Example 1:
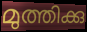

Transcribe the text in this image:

മുത്തിക്കു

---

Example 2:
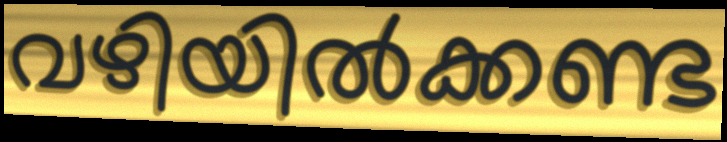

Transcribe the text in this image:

വഴിയിൽക്കണ്ട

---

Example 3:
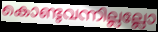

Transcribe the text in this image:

കൊണ്ടുവന്നില്ലല്ലോ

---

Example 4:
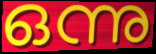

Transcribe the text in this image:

ഒന്നു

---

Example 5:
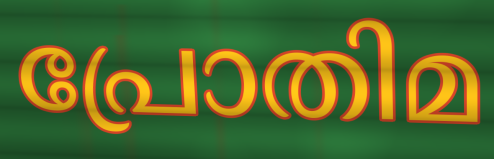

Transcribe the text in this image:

പ്രോതിമ